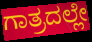
ಗಾತ್ರದಲ್ಲೇ